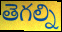
తెగల్ని